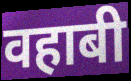
वहाबी